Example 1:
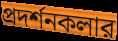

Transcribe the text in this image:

প্রদর্শনকলার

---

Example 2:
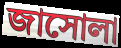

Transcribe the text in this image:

জাসোলা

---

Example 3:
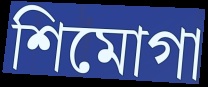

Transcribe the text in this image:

শিমোগা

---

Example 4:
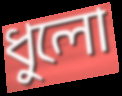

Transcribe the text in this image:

ধুলো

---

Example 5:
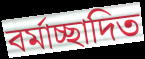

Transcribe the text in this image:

বর্মাচ্ছাদিত